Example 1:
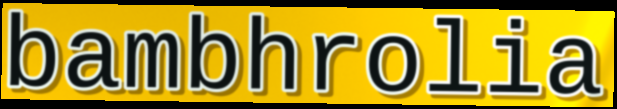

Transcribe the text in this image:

bambhrolia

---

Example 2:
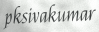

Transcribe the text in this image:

pksivakumar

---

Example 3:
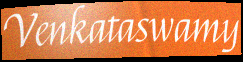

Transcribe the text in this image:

Venkataswamy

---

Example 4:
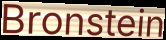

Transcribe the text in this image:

Bronstein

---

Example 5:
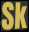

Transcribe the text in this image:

Sk